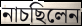
নাচছিলেন